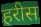
हरीस